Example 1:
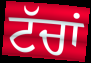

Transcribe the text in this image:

ਟੱਚਾਂ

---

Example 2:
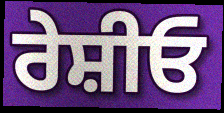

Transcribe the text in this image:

ਰੇਸ਼ੀਓ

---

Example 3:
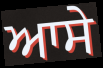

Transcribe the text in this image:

ਆਸੇ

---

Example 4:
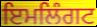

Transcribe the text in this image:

ਇਮਲਿੰਗਟ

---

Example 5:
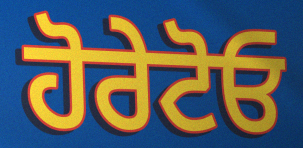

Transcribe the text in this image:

ਹੋਰੇਟੋਓ